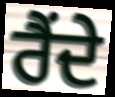
ਰੈਂਦੇ